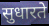
सुधारते